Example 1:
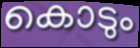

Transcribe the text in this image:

കൊടും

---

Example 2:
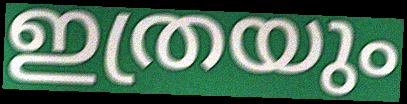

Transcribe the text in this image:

ഇത്രയും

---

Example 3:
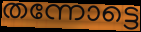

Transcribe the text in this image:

തന്നോട്ടെ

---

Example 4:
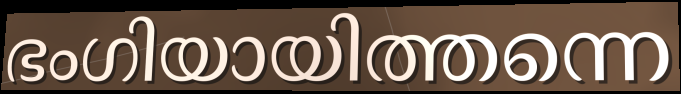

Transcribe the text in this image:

ഭംഗിയായിത്തന്നെ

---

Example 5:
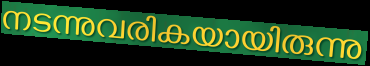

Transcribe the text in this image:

നടന്നുവരികയായിരുന്നു